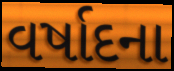
વર્ષાદના